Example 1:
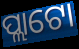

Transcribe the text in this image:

ପ୍ଲାଟୋ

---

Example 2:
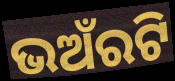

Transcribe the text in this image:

ଭଅଁରଟି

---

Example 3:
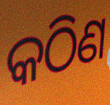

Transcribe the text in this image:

କଠିଣ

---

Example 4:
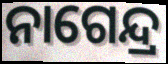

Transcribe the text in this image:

ନାଗେନ୍ଦ୍ର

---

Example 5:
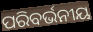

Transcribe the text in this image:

ପରିବର୍ଭନୀୟ